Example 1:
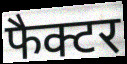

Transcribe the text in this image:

फैक्टर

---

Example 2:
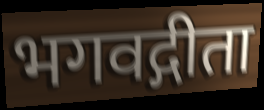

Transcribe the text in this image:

भगवद्गीता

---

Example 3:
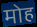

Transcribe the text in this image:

मोह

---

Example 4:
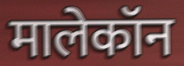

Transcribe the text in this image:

मालेकॉन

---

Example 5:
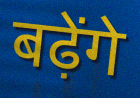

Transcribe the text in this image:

बढ़ेंगे